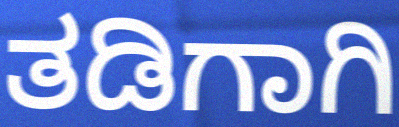
ತಡಿಗಾಗಿ